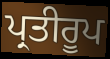
ਪ੍ਰਤੀਰੂਪ